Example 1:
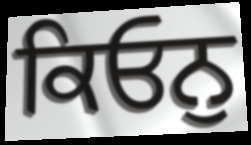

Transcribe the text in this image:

ਕਿਓਨੁ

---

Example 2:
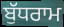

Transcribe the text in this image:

ਬੁੱਧਰਾਮ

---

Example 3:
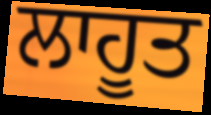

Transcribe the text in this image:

ਲਾਹੂਤ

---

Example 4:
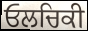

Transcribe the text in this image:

ਓਲਚਿਕੀ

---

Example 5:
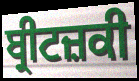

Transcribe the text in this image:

ਬ੍ਰੀਟਜ਼ਕੀ